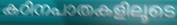
കഠിനപാതകളിലൂടെ